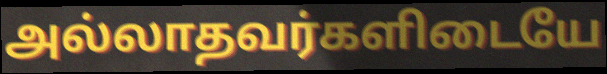
அல்லாதவர்களிடையே